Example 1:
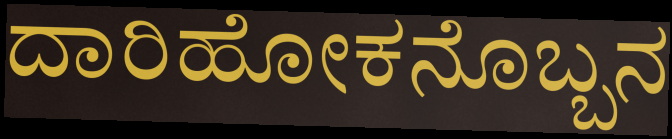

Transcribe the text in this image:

ದಾರಿಹೋಕನೊಬ್ಬನ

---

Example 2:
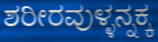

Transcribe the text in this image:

ಶರೀರವುಳ್ಳನ್ನಕ್ಕ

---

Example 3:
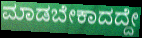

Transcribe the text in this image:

ಮಾಡಬೇಕಾದದ್ದೇ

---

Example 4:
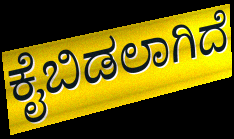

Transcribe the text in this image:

ಕೈಬಿಡಲಾಗಿದೆ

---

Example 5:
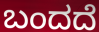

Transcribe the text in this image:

ಬಂದದೆ